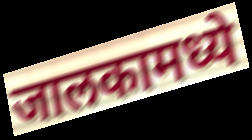
जालकामध्ये